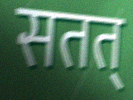
सतत्